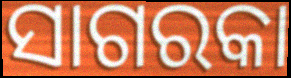
ସାଗରକା